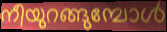
നീയുറങ്ങുമ്പോൾ